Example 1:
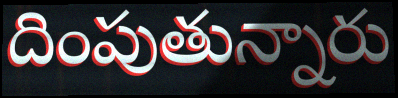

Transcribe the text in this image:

దింపుతున్నారు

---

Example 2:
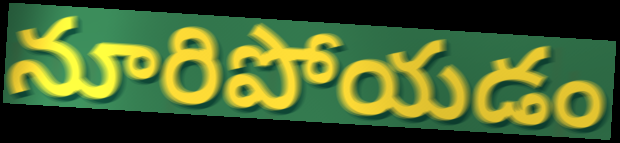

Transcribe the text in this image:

నూరిపోయడం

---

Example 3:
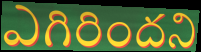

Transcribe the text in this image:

ఎగిరిందని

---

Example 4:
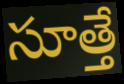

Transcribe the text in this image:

సూత్తే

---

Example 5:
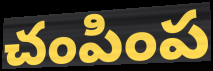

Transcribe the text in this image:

చంపింప